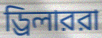
ড্রিলাররা